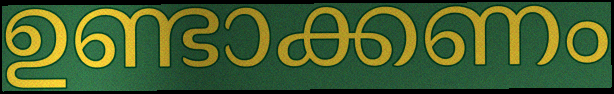
ഉണ്ടാക്കണം